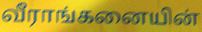
வீராங்கனையின்